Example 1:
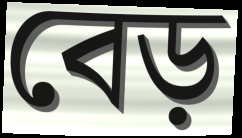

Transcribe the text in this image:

বেড়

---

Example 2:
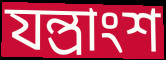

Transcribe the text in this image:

যন্ত্রাংশ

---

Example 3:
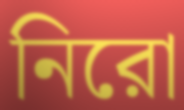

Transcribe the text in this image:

নিরো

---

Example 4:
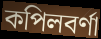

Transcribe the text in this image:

কপিলবর্ণা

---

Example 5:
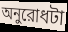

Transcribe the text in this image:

অনুরোধটা